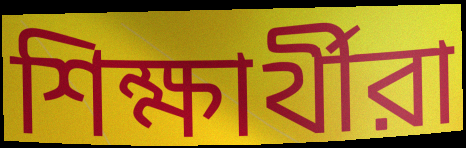
শিক্ষার্থীরা